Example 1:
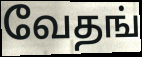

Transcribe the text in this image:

வேதங்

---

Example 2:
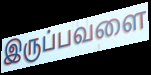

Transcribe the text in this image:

இருப்பவளை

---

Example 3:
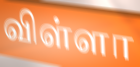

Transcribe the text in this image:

விள்ளா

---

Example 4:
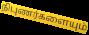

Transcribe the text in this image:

நிபுணர்களையும்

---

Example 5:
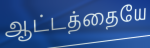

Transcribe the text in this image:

ஆட்டத்தையே